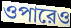
ওপারেও